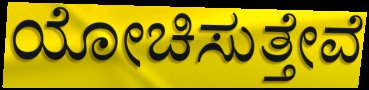
ಯೋಚಿಸುತ್ತೇವೆ